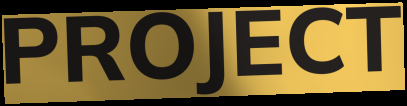
PROJECT